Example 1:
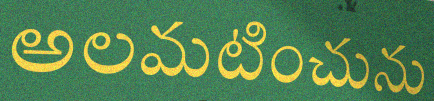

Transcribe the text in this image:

అలమటించును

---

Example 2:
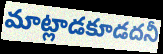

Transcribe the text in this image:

మాట్లాడకూడదనీ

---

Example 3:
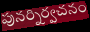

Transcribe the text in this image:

పునర్నిర్వచనం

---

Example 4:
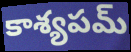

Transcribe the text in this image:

కాశ్యపమ్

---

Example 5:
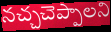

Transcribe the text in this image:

నచ్చచెప్పాలని